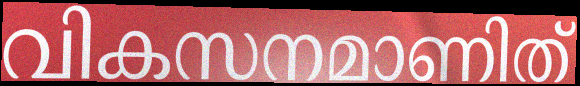
വികസനമാണിത്